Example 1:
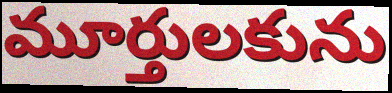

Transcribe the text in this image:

మూర్తులకును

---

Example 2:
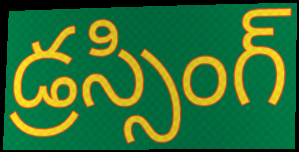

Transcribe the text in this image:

డ్రస్సింగ్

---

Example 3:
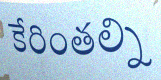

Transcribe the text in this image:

కేరింతల్ని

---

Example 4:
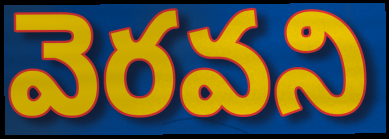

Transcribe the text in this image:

వెరవని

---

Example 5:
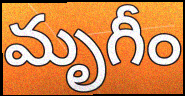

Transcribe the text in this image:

మృగీం